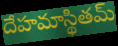
దేహమాస్థితమ్